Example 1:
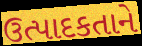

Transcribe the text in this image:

ઉત્પાદકતાને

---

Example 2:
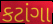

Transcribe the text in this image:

કટાંગા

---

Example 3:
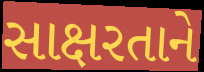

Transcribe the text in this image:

સાક્ષરતાને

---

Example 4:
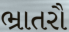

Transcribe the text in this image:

ભ્રાતરૌ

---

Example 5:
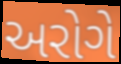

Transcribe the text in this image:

અરોગે